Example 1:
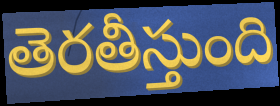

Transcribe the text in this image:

తెరతీస్తుంది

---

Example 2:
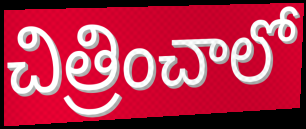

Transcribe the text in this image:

చిత్రించాలో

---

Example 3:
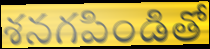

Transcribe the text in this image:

శనగపిండితో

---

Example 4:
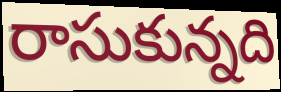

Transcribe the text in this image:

రాసుకున్నది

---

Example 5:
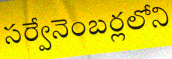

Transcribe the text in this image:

సర్వేనెంబర్లలోని